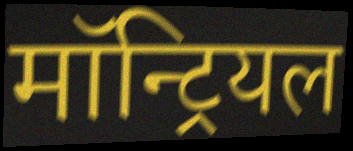
मॉन्ट्रियल